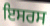
ਇਸਰਸ